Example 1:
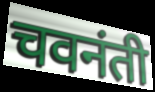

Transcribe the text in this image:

चवनंती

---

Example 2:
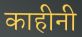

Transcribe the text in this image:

काहीनी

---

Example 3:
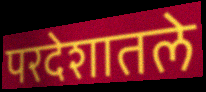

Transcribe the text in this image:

परदेशातले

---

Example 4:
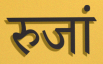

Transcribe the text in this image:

रुजां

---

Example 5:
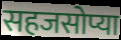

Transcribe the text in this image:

सहजसोप्या